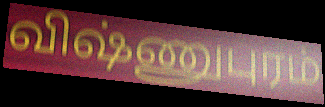
விஷ்ணுபுரம்